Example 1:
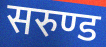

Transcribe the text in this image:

सरुण्ड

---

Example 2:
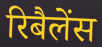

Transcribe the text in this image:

रिबैलेंस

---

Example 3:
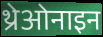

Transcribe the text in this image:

थ्रेओनाइन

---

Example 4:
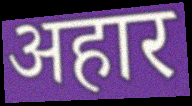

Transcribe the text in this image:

अहार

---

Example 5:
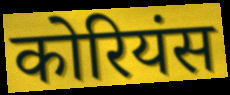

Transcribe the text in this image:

कोरियंस